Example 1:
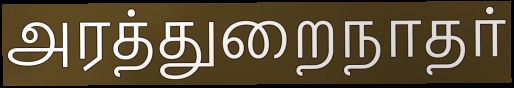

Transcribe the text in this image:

அரத்துறைநாதர்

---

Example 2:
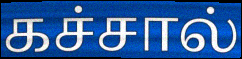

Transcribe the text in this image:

கச்சால்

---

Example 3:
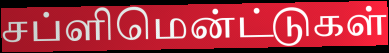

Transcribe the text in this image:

சப்ளிமென்ட்டுகள்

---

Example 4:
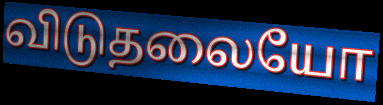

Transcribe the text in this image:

விடுதலையோ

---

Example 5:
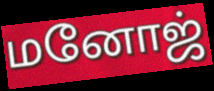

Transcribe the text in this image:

மனோஜ்